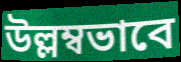
উল্লম্বভাবে